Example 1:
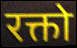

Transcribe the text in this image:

रक्तो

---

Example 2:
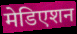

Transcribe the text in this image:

मेडिएशन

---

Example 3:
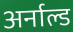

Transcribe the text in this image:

अर्नाल्ड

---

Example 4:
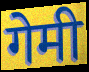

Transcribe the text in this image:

गेमी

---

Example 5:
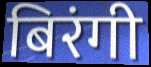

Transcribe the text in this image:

बिरंगी